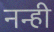
नन्ही